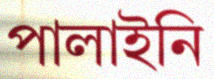
পালাইনি